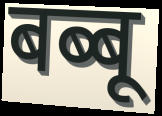
बब्बू